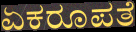
ಏಕರೂಪತೆ